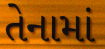
તેનામાં